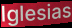
Iglesias